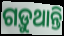
ଗଡ଼ୁଥାନ୍ତି